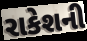
રાકેશની